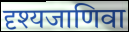
दृश्यजाणिवा